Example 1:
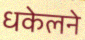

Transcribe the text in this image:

धकेलने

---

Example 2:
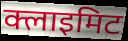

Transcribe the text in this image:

क्लाइमिट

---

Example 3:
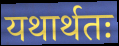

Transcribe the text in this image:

यथार्थतः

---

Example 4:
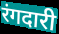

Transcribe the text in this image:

रंगदारी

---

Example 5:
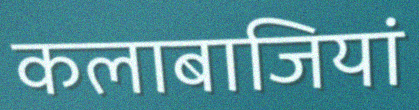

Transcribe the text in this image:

कलाबाजियां